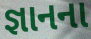
જ્ઞાનના